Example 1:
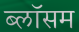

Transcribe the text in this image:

ब्लॉसम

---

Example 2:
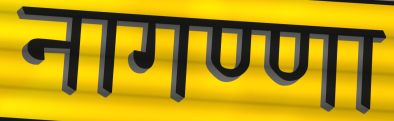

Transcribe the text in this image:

नागण्णा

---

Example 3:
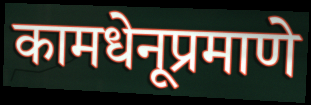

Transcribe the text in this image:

कामधेनूप्रमाणे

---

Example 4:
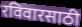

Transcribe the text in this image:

रविवारसाठी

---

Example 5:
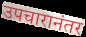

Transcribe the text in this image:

उपचारानंतर